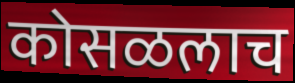
कोसळलाच